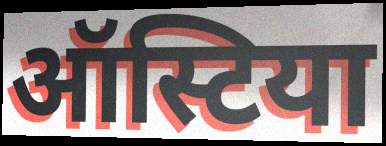
ऑस्टिया